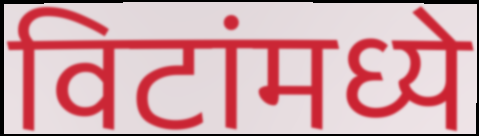
विटांमध्ये